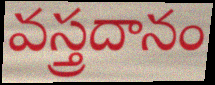
వస్త్రదానం